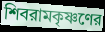
শিবরামকৃষ্ণণের